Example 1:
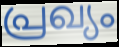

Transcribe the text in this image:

പ്രഖ്യം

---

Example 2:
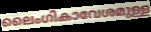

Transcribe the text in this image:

ലൈംഗികാവേശമുള്ള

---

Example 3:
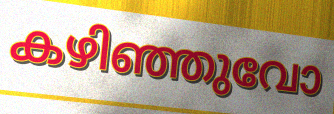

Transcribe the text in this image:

കഴിഞ്ഞുവോ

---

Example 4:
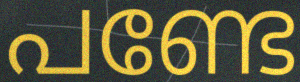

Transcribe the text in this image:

പണ്ടേ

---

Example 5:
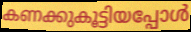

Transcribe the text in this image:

കണക്കുകൂട്ടിയപ്പോൾ